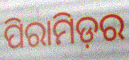
ପିରାମିଡ଼ର